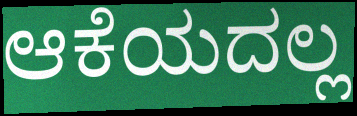
ಆಕೆಯದಲ್ಲ